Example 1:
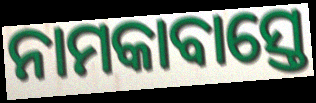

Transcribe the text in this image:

ନାମକାବାସ୍ତେ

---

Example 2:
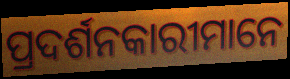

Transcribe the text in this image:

ପ୍ରଦର୍ଶନକାରୀମାନେ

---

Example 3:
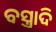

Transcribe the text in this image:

ବସ୍ତ୍ରାଦି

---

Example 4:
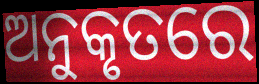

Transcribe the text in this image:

ଅନୁକୃତରେ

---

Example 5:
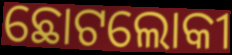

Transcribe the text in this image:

ଛୋଟଲୋକୀ